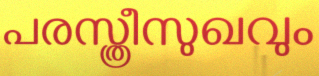
പരസ്ത്രീസുഖവും